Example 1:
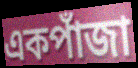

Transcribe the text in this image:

একপাঁজা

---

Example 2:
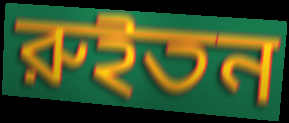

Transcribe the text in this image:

রুইতন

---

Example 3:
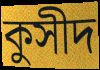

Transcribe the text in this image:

কুসীদ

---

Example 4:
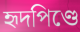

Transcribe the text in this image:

হৃদপিণ্ডে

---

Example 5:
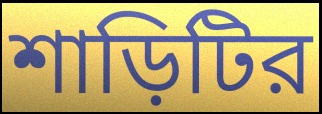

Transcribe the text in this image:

শাড়িটির